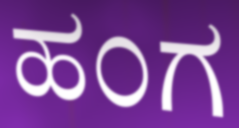
ಹಂಗ